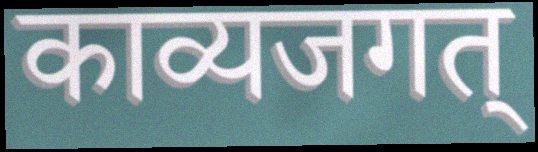
काव्यजगत्